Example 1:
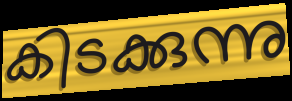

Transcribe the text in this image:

കിടക്കുന്നു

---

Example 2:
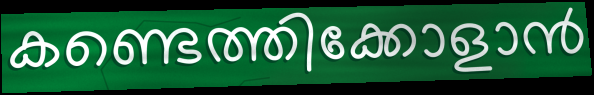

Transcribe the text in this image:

കണ്ടെത്തിക്കോളാൻ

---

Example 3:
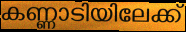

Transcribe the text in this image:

കണ്ണാടിയിലേക്ക്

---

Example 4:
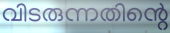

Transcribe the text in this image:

വിടരുന്നതിന്റെ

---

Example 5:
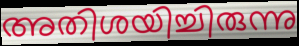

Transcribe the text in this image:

അതിശയിച്ചിരുന്നു